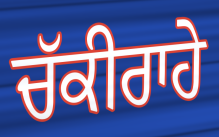
ਚੱਕੀਰਾਹੇ